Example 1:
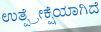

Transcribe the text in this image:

ಉತ್ಪ್ರೇಕ್ಷೆಯಾಗಿದೆ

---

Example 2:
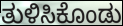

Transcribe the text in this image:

ತುಳಿಸಿಕೊಂಡು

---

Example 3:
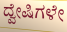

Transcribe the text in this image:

ದ್ವೇಷಿಗಳೇ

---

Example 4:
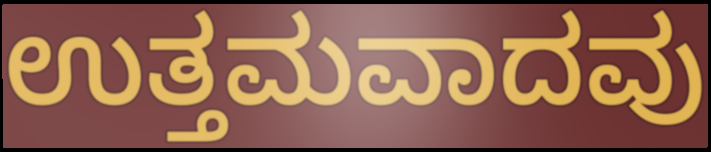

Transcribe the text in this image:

ಉತ್ತಮವಾದವು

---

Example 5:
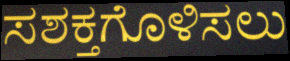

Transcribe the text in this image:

ಸಶಕ್ತಗೊಳಿಸಲು